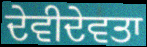
ਦੇਵੀਦੇਵਤਾ